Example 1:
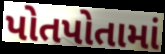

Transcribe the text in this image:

પોતપોતામાં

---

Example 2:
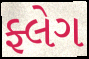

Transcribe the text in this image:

ફ્લેગ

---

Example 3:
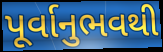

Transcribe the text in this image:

પૂર્વાનુભવથી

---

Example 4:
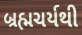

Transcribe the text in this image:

બ્રહ્મચર્યથી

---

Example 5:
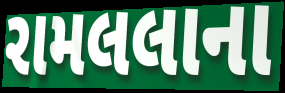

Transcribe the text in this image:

રામલલાના